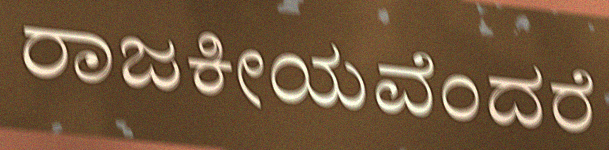
ರಾಜಕೀಯವೆಂದರೆ